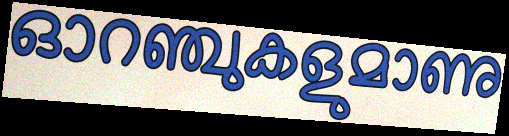
ഓറഞ്ചുകളുമാണു